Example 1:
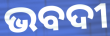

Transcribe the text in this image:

ଭବଦୀ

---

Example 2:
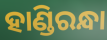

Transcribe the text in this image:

ହାଣ୍ଡିରନ୍ଧା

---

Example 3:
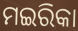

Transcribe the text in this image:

ମଇରିକା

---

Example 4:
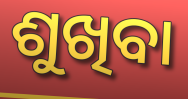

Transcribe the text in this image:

ଶୁଖିବା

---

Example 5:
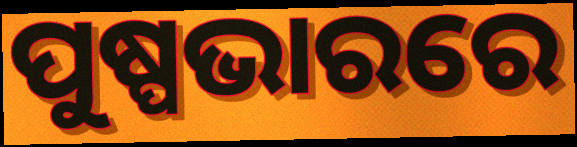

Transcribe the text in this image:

ପୁଷ୍ପଭାରରେ